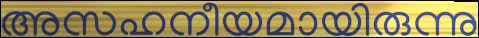
അസഹനീയമായിരുന്നു